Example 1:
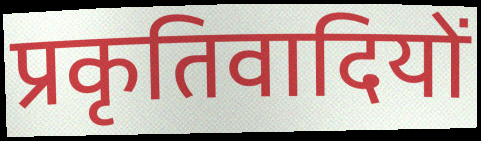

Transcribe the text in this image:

प्रकृतिवादियों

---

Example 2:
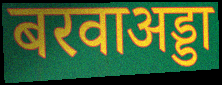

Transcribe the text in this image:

बरवाअड्डा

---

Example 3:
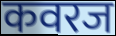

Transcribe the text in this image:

कवरज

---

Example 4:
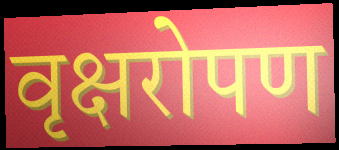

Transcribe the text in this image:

वृक्षरोपण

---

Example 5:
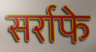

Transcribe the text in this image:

सर्राफे